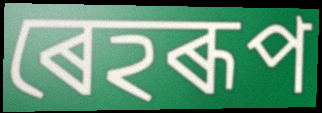
ৰেহৰূপ